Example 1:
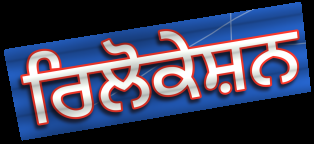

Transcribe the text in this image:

ਰਿਲੋਕੇਸ਼ਨ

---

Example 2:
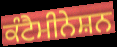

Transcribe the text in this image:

ਕੰਟੈਮੀਨੇਸ਼ਨ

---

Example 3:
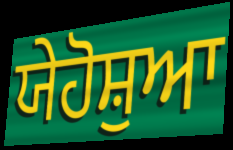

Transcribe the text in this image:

ਯੇਹੋਸ਼ੁਆ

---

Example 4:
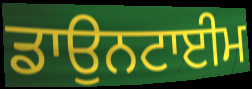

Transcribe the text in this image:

ਡਾਉਨਟਾਈਮ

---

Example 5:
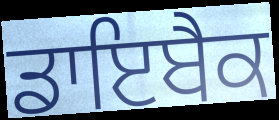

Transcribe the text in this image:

ਡਾਇਬੈਕ